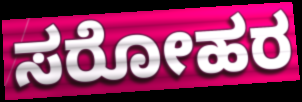
ಸರೋಹರ